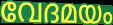
വേദമയം